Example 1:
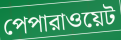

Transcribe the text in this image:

পেপারাওয়েট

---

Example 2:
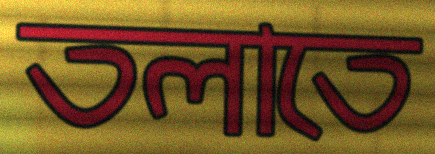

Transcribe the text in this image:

তলাতে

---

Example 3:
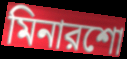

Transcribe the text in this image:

মিনারশো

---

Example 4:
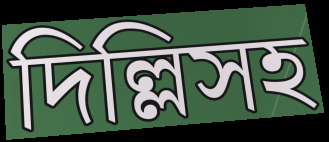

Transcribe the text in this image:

দিল্লিসহ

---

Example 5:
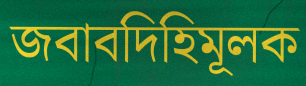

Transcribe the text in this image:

জবাবদিহিমূলক